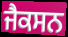
ਜੈਕਸਨ